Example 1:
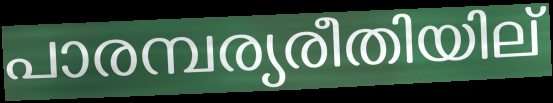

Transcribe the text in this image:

പാരമ്പര്യരീതിയില്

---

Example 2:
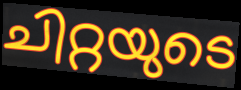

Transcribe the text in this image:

ചിറ്റയുടെ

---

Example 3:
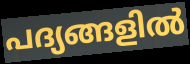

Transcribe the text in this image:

പദ്യങ്ങളിൽ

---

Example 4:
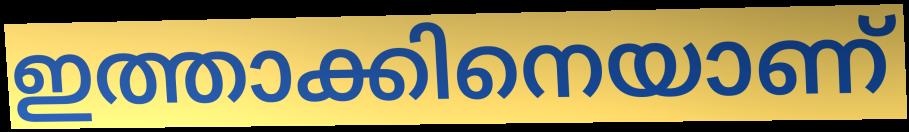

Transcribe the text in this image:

ഇത്താക്കിനെയാണ്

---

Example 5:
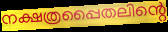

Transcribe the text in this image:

നക്ഷത്രപ്പൈതലിന്റെ